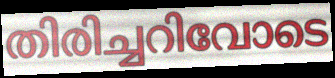
തിരിച്ചറിവോടെ